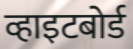
व्हाइटबोर्ड